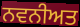
ਨਵਨੀਅਤ